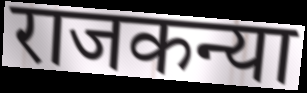
राजकन्या